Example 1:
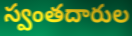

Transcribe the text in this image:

స్వంతదారుల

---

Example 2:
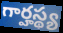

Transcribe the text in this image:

గార్హస్థ్య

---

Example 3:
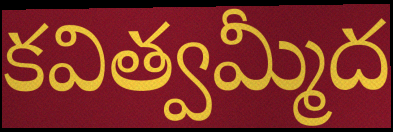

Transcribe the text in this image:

కవిత్వమ్మీద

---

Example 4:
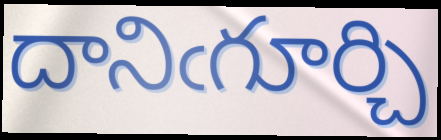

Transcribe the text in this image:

దానిఁగూర్చి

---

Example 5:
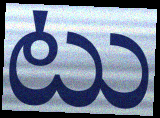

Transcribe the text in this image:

టు